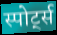
स्पोर्ट्स